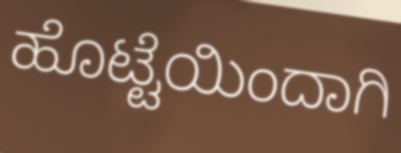
ಹೊಟ್ಟೆಯಿಂದಾಗಿ